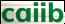
caiib